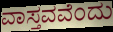
ವಾಸ್ತವವೆಂದು